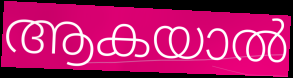
ആകയാൽ